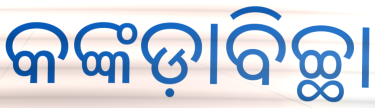
କଙ୍କଡ଼ାବିଚ୍ଛା